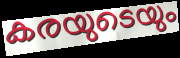
കരയുടെയും